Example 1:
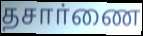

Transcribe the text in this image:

தசார்ணை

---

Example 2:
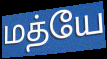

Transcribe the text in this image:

மத்யே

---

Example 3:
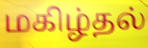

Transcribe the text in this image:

மகிழ்தல்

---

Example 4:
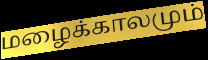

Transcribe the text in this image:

மழைக்காலமும்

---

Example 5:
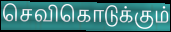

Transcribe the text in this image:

செவிகொடுக்கும்